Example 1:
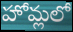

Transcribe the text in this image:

హోమ్లలో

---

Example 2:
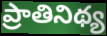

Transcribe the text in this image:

ప్రాతినిథ్య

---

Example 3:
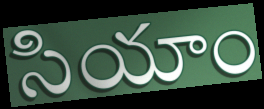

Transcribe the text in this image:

సియాం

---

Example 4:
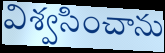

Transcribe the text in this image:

విశ్వసించాను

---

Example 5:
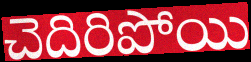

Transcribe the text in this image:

చెదిరిపోయి